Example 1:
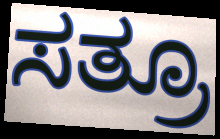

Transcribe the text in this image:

ಸತ್ರೂ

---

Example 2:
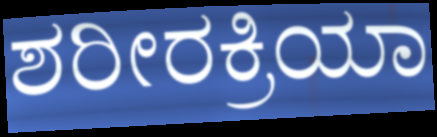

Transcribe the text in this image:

ಶರೀರಕ್ರಿಯಾ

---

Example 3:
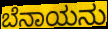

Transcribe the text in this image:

ಬೆನಾಯನು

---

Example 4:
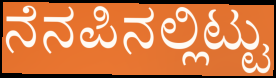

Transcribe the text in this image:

ನೆನಪಿನಲ್ಲಿಟ್ಟು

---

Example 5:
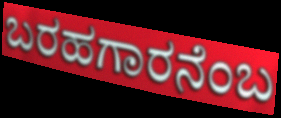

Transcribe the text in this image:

ಬರಹಗಾರನೆಂಬ